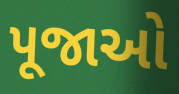
પૂજાઓ